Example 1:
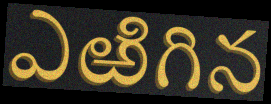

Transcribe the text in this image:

ఎఱిగిన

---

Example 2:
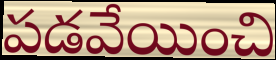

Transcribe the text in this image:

పడవేయించి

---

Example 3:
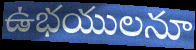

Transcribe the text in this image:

ఉభయులనూ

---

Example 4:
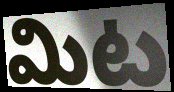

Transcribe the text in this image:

మిట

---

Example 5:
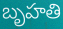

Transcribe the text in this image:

బృహతి